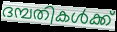
ദമ്പതികൾക്ക്